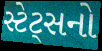
સ્ટેટ્સનો